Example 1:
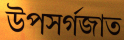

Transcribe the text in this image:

উপসর্গজাত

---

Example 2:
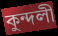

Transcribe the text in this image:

কুন্দলী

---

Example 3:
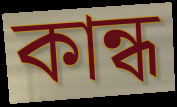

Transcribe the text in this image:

কান্ধ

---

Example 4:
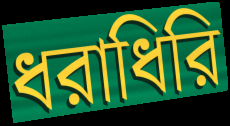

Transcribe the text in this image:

ধরাধিরি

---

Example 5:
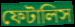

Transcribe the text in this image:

ফেটালিস